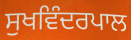
ਸੁਖਵਿੰਦਰਪਾਲ